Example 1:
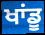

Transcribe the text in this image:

ਖਾਂਡੂ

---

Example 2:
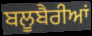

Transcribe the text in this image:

ਬਲੂਬੈਰੀਆਂ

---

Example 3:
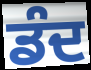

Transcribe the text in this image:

ਡੰਦ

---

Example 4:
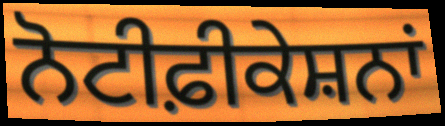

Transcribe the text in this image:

ਨੋਟੀਫ਼ੀਕੇਸ਼ਨਾਂ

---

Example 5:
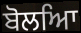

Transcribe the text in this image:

ਬੋਲਆਿ